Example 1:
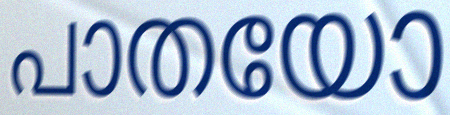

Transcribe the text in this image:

പാതയോ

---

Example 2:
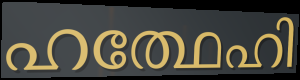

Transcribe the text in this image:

ഹത്ഥേഹി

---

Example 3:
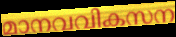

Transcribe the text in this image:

മാനവവികസന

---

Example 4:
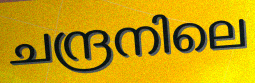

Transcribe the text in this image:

ചന്ദ്രനിലെ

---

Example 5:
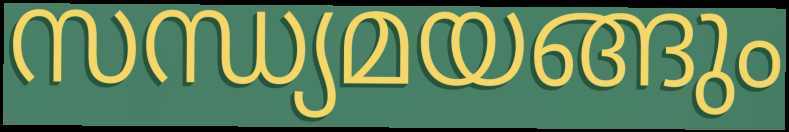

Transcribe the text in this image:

സന്ധ്യമയങ്ങും